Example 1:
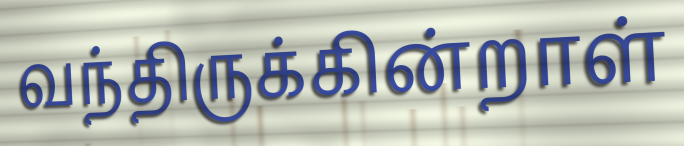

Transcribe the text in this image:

வந்திருக்கின்றாள்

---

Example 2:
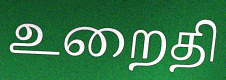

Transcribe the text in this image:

உறைதி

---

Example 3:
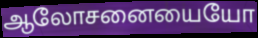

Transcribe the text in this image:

ஆலோசனையையோ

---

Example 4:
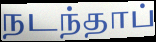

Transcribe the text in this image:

நடந்தாப்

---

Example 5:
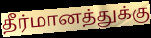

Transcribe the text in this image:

தீர்மானத்துக்கு